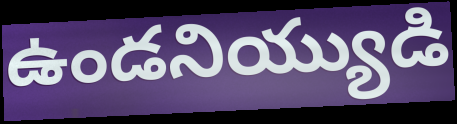
ఉండనియ్యుడి